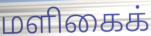
மளிகைக்